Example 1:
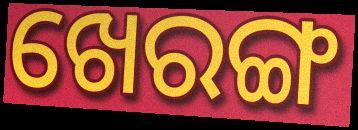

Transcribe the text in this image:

ଖେରଙ୍ଗ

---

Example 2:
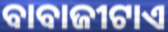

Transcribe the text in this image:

ବାବାଜୀଟାଏ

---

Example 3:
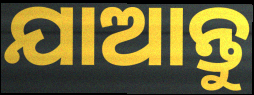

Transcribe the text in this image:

ଯାଆନ୍ତୁ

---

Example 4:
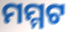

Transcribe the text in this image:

ମମ୍ମଟ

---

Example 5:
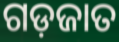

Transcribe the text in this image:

ଗଡ଼ଜାତ